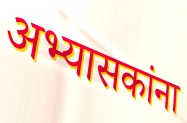
अभ्यासकांना